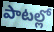
పాటల్లో